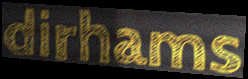
dirhams